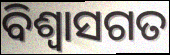
ବିଶ୍ଵାସଗତ